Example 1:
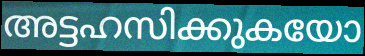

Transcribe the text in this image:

അട്ടഹസിക്കുകയോ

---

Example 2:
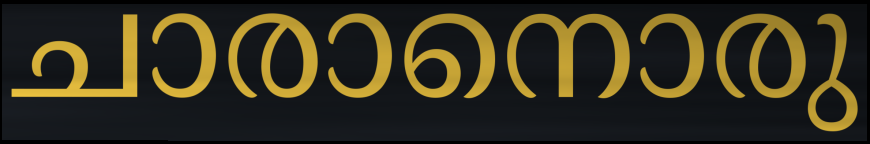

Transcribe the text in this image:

ചാരാനൊരു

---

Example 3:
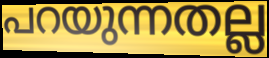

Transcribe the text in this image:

പറയുന്നതല്ല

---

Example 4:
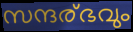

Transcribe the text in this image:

സന്ദര്ഭവും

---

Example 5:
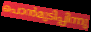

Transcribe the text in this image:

പൊൻമുടിപ്പിന്നു